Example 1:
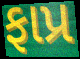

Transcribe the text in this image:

ફાપ્ર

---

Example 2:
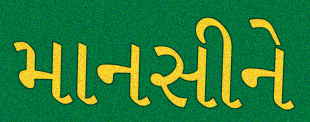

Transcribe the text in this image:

માનસીને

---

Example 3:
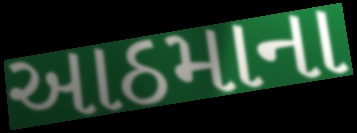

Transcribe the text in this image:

આઠમાના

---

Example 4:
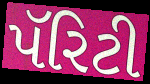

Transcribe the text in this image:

પૅરિટી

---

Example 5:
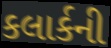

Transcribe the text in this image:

કલાર્કની